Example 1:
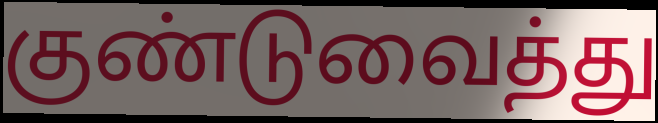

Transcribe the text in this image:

குண்டுவைத்து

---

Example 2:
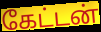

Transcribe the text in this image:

கேட்டன்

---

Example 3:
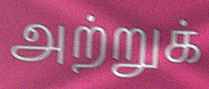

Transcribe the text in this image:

அற்றுக்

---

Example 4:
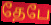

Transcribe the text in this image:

தேபே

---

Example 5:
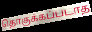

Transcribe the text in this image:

தொகுக்கப்படாத